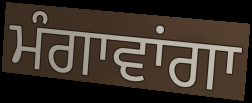
ਮੰਗਾਵਾਂਗਾ